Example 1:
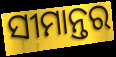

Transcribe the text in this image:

ସୀମାନ୍ତର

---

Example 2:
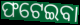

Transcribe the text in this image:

ଫଟେଇବା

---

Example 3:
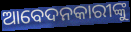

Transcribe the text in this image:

ଆବେଦନକାରୀଙ୍କୁ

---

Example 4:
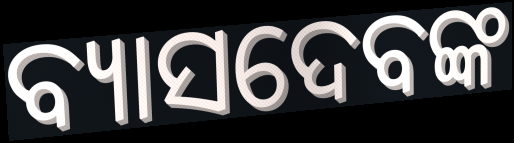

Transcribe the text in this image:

ବ୍ୟାସଦେବଙ୍କ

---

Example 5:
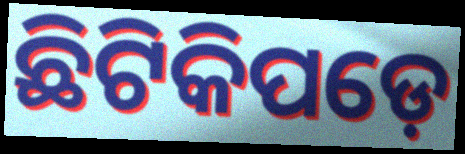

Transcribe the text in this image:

ଛିଟିକିପଡ଼େ